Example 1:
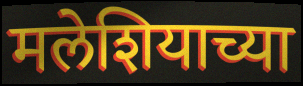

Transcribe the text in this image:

मलेशियाच्या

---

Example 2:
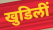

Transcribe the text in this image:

खुडिलीं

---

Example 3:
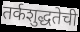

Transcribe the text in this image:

तर्कशुद्धतेची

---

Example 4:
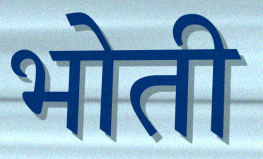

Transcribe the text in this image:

भोती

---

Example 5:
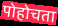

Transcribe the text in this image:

पोहोचता